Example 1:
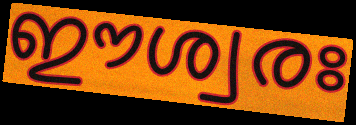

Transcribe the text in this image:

ഈശ്വരഃ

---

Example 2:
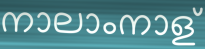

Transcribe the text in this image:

നാലാംനാള്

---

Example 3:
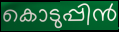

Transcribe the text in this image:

കൊടുപ്പിൻ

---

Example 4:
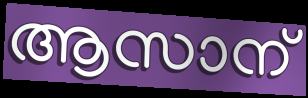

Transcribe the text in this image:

ആസാന്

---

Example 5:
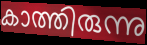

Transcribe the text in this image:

കാത്തിരുന്നു